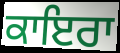
ਕਾਇਰਾ